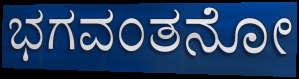
ಭಗವಂತನೋ